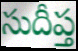
సుదీప్త